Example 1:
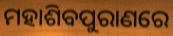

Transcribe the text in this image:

ମହାଶିବପୁରାଣରେ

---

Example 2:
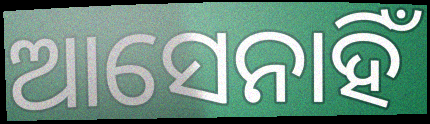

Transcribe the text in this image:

ଆସେନାହିଁ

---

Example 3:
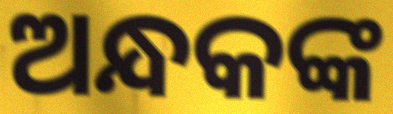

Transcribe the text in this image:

ଅନ୍ଧକଙ୍କ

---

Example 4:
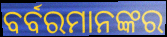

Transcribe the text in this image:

ବର୍ବରମାନଙ୍କର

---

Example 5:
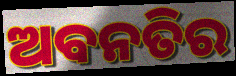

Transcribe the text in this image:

ଅବନତିର